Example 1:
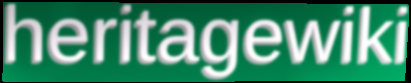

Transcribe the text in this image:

heritagewiki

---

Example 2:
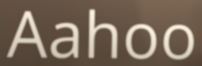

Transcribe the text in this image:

Aahoo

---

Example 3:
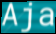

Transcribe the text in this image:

Aja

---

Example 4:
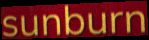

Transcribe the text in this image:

sunburn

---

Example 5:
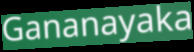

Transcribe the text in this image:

Gananayaka